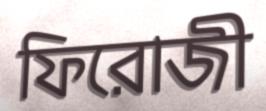
ফিরোজী